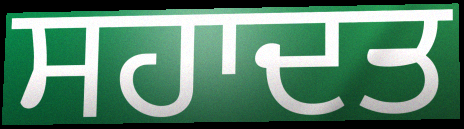
ਸਹਾਦਤ